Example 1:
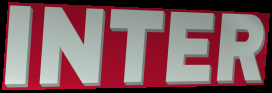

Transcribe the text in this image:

INTER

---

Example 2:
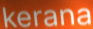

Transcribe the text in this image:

kerana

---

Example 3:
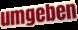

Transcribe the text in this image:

umgeben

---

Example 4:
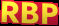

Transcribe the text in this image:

RBP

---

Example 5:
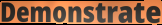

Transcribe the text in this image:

Demonstrate